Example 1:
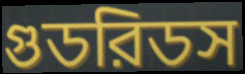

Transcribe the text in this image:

গুডরিডস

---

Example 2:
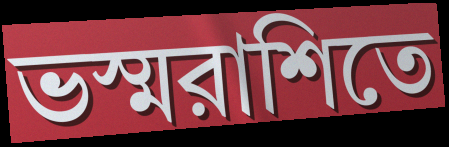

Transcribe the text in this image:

ভস্মরাশিতে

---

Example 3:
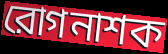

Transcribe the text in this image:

রোগনাশক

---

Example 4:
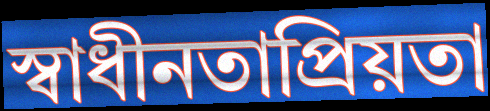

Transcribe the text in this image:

স্বাধীনতাপ্রিয়তা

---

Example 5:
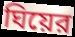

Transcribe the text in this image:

ঘিয়ের